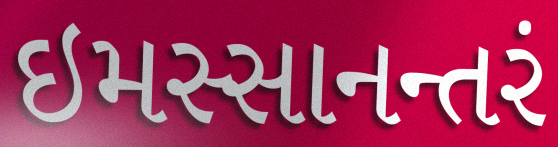
ઇમસ્સાનન્તરં